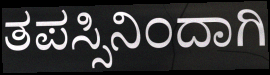
ತಪಸ್ಸಿನಿಂದಾಗಿ